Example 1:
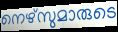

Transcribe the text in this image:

നെഴ്സുമാരുടെ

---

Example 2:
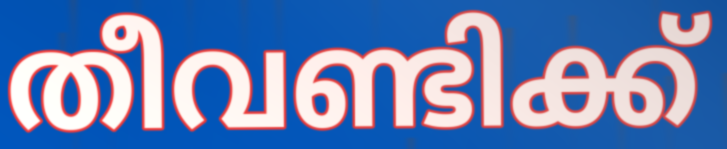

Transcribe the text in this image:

തീവണ്ടിക്ക്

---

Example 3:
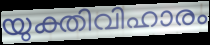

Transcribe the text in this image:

യുക്തിവിഹാരം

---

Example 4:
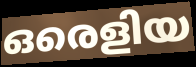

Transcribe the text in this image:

ഒരെളിയ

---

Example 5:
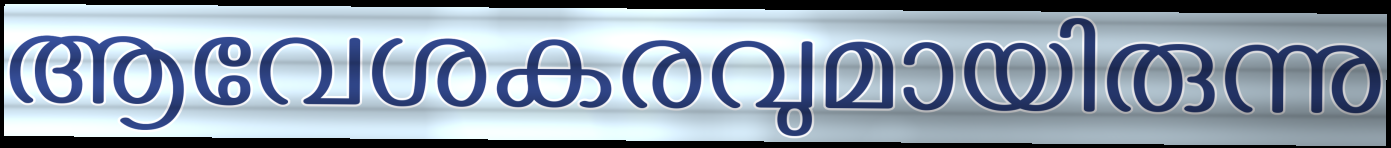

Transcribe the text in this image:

ആവേശകരവുമായിരുന്നു